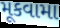
મૂકવામા